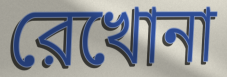
রেখোনা